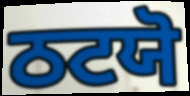
ਠਟਯੋ